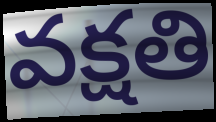
వక్షతి